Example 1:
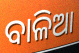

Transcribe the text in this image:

ବାଳିଆ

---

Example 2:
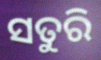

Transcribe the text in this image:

ସତୁରି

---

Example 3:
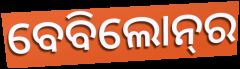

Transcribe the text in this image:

ବେବିଲୋନ୍‌ର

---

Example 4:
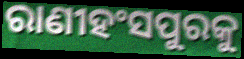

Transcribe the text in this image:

ରାଣୀହଂସପୁରକୁ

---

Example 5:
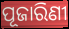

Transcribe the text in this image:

ପୂଜାରିଣୀ